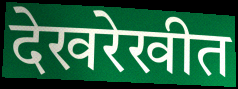
देखरेखीत